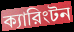
ক্যারিংটন